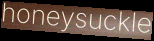
honeysuckle